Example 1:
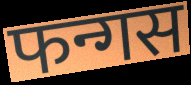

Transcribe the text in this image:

फन्गस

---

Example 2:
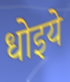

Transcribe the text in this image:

धोइये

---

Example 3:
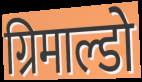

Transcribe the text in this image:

ग्रिमाल्डो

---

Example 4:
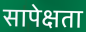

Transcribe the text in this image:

सापेक्षता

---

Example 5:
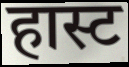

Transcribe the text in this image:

हास्ट